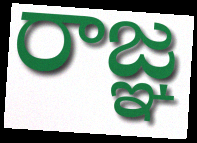
రాజ్ఞ